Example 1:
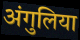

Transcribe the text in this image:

अंगुलिया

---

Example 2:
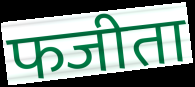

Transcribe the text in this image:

फजीता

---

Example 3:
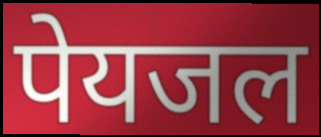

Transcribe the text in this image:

पेयजल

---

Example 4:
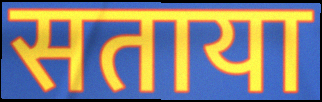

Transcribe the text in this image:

सताया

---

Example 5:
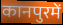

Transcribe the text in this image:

कानपुरमें